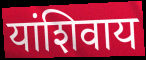
यांशिवाय